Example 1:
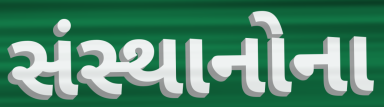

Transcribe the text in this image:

સંસ્થાનોના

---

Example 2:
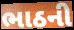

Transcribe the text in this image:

ભાઠની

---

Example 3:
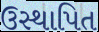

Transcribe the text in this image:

ઉસ્થાપિત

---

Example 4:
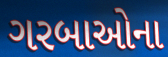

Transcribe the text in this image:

ગરબાઓના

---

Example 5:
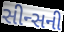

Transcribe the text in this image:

સીન્સની